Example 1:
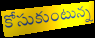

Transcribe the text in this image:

కోసుకుంటున్న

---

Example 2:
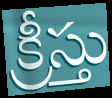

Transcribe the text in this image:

క్రీస్తు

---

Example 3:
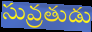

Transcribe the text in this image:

సువ్రతుడు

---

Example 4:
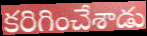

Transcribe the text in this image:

కరిగించేశాడు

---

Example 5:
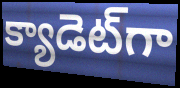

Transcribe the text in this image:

క్యాడెట్‌గా